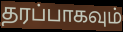
தரப்பாகவும்